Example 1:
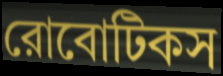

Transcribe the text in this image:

রোবোটিকস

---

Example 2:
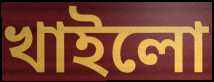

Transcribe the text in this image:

খাইলো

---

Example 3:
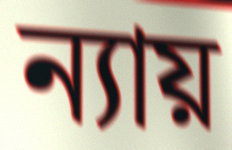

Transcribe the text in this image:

ন্যায়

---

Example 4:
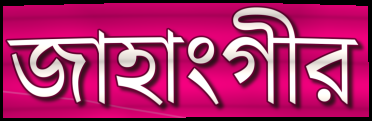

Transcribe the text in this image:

জাহাংগীর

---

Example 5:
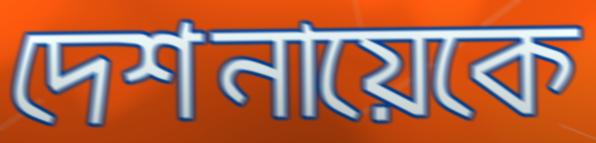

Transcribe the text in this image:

দেশনায়েকে